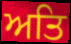
ਅਤਿ